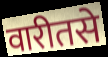
वारीतसे